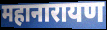
महानारायण